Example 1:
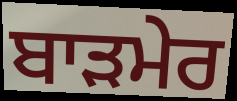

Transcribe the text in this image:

ਬਾੜਮੇਰ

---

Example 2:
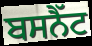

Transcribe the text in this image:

ਬਸਨੈੱਟ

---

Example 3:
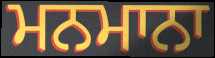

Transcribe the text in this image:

ਮਨਮਾਨਾ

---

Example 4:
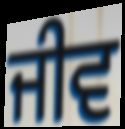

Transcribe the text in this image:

ਜੀਵ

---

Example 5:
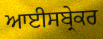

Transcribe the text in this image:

ਆਈਸਬ੍ਰੇਕਰ